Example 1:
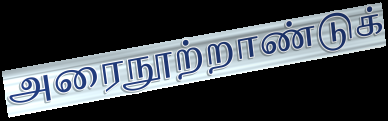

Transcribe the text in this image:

அரைநூற்றாண்டுக்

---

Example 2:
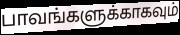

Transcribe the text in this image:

பாவங்களுக்காகவும்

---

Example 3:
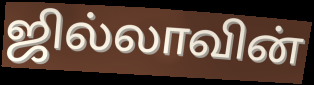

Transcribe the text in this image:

ஜில்லாவின்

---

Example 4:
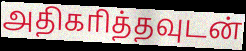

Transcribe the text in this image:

அதிகரித்தவுடன்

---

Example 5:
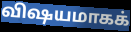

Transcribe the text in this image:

விஷயமாகக்